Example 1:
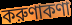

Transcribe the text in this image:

করুণাকণা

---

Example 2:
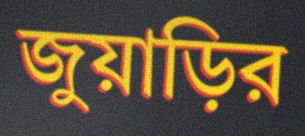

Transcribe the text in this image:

জুয়াড়ির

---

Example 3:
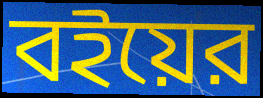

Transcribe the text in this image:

বইয়ের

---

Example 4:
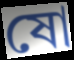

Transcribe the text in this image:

ষো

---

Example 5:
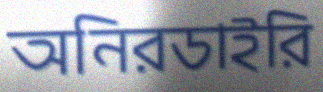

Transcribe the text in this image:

অনিরডাইরি